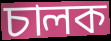
চালক